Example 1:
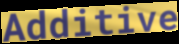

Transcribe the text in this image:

Additive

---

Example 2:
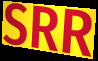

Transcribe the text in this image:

SRR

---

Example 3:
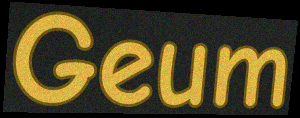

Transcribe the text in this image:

Geum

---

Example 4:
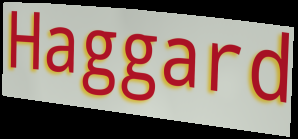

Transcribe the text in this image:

Haggard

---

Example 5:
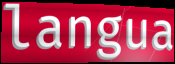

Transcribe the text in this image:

langua